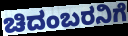
ಚಿದಂಬರನಿಗೆ